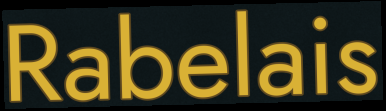
Rabelais